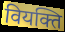
वियक्ति